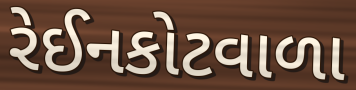
રેઈનકોટવાળા